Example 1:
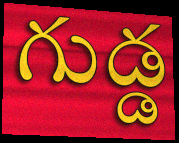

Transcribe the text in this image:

గుడ్డ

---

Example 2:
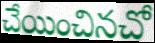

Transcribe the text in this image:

చేయించినచో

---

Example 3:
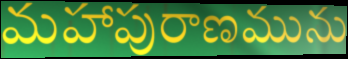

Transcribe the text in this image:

మహాపురాణమును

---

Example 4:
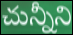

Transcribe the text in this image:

చున్నీని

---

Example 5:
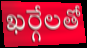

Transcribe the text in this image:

ఖర్గేలతో